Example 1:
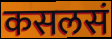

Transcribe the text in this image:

कसलसं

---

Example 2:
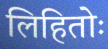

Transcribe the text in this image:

लिहितोः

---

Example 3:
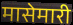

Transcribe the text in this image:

मासेमारी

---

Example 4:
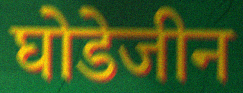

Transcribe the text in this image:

घोडेजीन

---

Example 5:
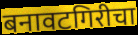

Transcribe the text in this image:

बनावटगिरीचा